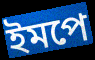
ইমপে